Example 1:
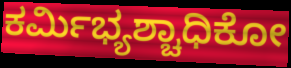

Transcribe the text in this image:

ಕರ್ಮಿಭ್ಯಶ್ಚಾಧಿಕೋ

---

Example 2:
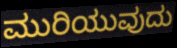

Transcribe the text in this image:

ಮುರಿಯುವುದು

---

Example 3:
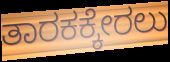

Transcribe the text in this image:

ತಾರಕಕ್ಕೇರಲು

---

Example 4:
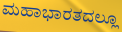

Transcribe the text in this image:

ಮಹಾಭಾರತದಲ್ಲೂ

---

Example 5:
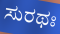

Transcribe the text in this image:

ಸುರಥಃ